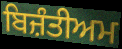
ਬਿਜ਼ੰਤੀਅਮ